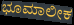
ಭೂಮಾಲೀಕ